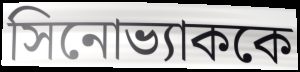
সিনোভ্যাককে